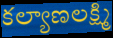
కల్యాణలక్ష్మి